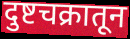
दुष्टचक्रातून